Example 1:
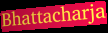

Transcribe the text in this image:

Bhattacharja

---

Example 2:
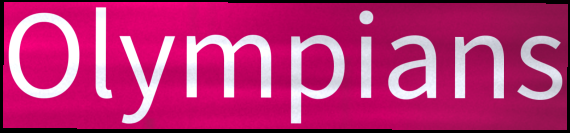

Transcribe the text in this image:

Olympians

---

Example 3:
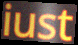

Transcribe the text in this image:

iust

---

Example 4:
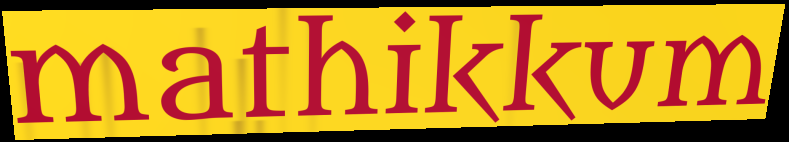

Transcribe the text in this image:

mathikkum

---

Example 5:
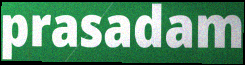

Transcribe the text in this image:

prasadam